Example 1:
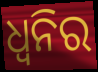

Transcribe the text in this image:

ଧ୍ୱନିର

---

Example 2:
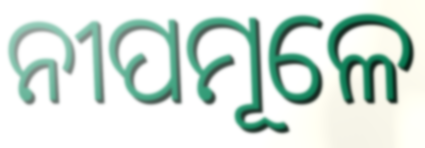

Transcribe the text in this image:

ନୀପମୂଳେ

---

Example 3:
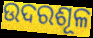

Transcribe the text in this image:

ଉଦରଶୂଳ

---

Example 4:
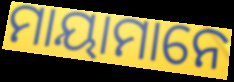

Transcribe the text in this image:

ମାୟାମାନେ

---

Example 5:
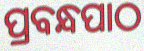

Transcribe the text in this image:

ପ୍ରବନ୍ଧପାଠ